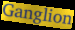
Ganglion